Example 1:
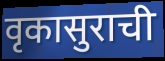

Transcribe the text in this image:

वृकासुराची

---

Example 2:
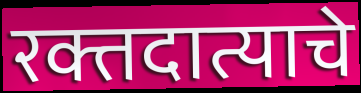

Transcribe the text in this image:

रक्तदात्याचे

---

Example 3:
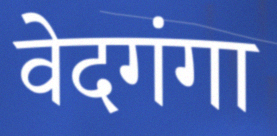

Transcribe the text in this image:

वेदगंगा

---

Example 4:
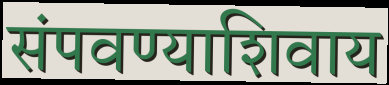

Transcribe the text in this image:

संपवण्याशिवाय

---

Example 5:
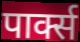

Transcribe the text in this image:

पार्क्स